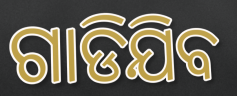
ଗାଡିଯିବ